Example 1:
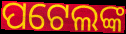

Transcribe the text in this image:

ପଟେଲଙ୍କ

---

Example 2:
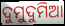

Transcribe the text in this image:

ଦୁମୁଦୁମିଆ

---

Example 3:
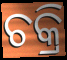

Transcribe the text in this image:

ଚକ୍ରି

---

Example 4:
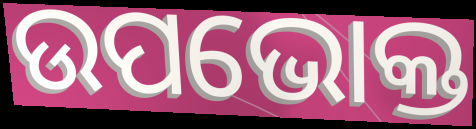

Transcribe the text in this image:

ଉପଭୋକ୍ତ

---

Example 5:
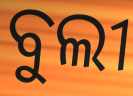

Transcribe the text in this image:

ବୁଲୀ